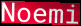
Noemi